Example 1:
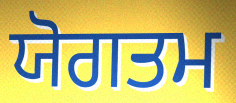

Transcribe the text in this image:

ਯੋਗਤਮ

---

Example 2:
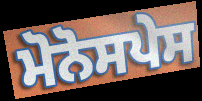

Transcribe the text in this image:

ਮੋਨੋਸਪੇਸ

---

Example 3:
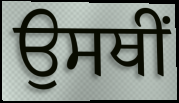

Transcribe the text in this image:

ਉਸਥੀਂ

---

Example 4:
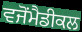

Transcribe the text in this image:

ਵਜੋਂਮੈਡੀਕਲ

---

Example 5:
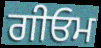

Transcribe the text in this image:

ਗੀਓਮ